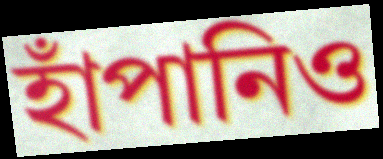
হাঁপানিও